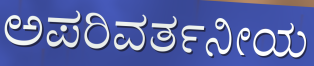
ಅಪರಿವರ್ತನೀಯ